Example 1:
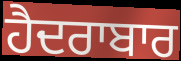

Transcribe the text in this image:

ਹੈਦਰਾਬਾਰ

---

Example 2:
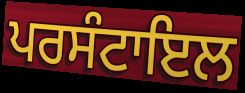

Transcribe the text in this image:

ਪਰਸੰਟਾਇਲ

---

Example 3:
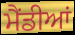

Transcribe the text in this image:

ਮੈਂਡੀਆਂ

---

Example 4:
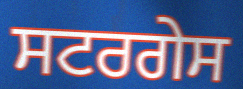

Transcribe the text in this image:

ਸਟਰਗੇਸ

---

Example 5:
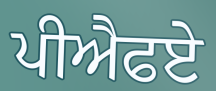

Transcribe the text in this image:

ਪੀਐਫਏ